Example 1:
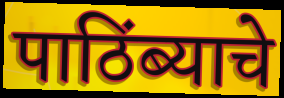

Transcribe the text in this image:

पाठिंब्याचे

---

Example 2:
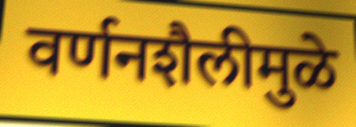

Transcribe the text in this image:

वर्णनशैलीमुळे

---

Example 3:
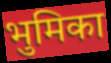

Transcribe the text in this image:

भुमिका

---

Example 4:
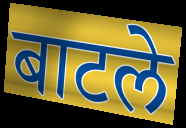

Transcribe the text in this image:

बाटले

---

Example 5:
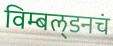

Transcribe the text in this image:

विम्बल्डनचं